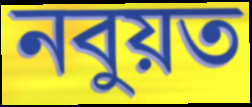
নবুয়ত